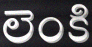
లెంకి